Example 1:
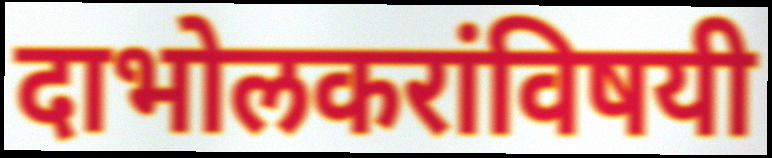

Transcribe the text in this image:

दाभोलकरांविषयी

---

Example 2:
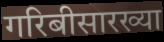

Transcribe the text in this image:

गरिबीसारख्या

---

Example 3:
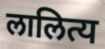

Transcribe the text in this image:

लालित्य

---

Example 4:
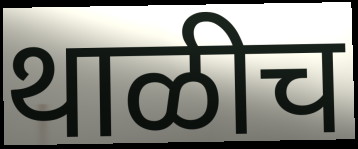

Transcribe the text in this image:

थाळीच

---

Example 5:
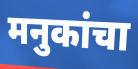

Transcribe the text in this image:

मनुकांचा